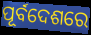
ପୂର୍ବଦେଶରେ